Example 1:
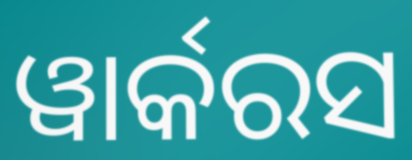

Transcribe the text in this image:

ୱାର୍କରସ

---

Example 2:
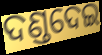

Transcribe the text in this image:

ଦଣ୍ଡଦେଇ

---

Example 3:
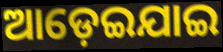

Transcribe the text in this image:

ଆଡ଼େଇଯାଇ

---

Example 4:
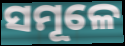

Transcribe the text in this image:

ସମୂଳେ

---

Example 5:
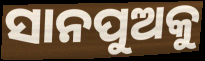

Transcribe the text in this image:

ସାନପୁଅକୁ